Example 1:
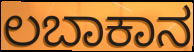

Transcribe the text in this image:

ಲಬಾಕಾನ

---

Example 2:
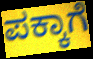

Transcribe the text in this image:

ಪಕ್ಕಾಗೆ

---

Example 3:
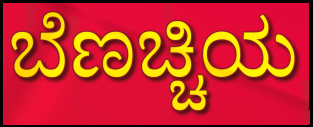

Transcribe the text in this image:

ಬೆಣಚ್ಚಿಯ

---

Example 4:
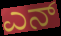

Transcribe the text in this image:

ಎನ್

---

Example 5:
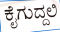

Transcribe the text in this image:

ಕೈಗುದ್ದಲಿ